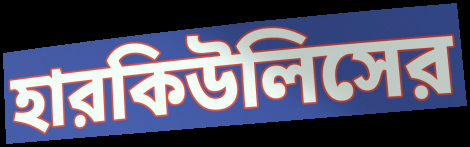
হারকিউলিসের